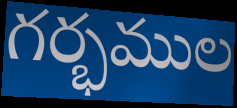
గర్భముల